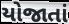
યોજાતાં